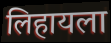
लिहायला